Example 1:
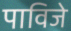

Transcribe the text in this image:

पाविजे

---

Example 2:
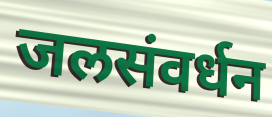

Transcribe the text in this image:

जलसंवर्धन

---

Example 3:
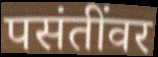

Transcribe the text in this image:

पसंतींवर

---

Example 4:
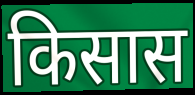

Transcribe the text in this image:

किसास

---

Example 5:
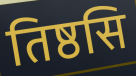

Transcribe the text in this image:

तिष्ठसि